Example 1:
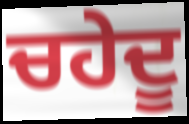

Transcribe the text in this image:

ਚਹੇਦੂ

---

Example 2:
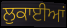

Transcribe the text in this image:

ਲੁਕਾਈਆਂ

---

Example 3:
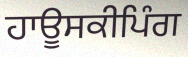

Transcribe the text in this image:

ਹਾਊਸਕੀਪਿੰਗ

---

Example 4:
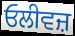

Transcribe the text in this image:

ਓਲੀਵਜ਼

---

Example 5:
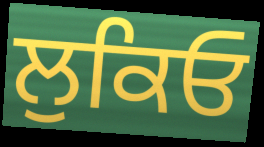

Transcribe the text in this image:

ਲੁਕਿਓ